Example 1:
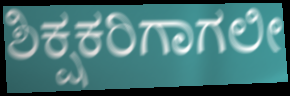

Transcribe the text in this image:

ಶಿಕ್ಷಕರಿಗಾಗಲೀ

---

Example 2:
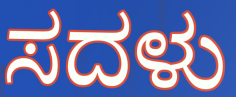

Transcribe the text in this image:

ಸದಳು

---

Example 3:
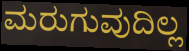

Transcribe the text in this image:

ಮರುಗುವುದಿಲ್ಲ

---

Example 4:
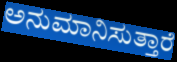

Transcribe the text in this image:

ಅನುಮಾನಿಸುತ್ತಾರೆ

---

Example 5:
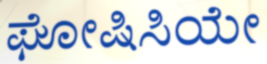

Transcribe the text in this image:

ಘೋಷಿಸಿಯೇ